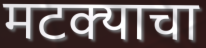
मटक्याचा